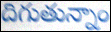
దిగుతున్నాం